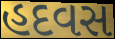
હદવસ